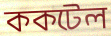
ককটেল